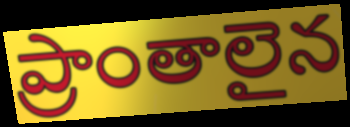
ప్రాంతాలైన